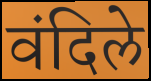
वंदिले